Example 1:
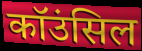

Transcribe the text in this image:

कॉउंसिल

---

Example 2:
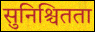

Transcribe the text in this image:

सुनिश्चितता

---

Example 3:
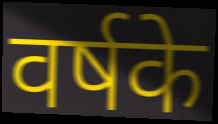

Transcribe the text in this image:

वर्षके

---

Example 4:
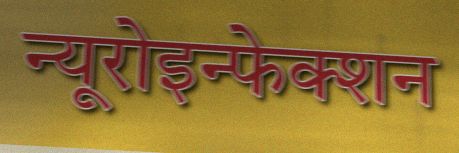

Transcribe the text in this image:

न्यूरोइन्फेक्शन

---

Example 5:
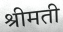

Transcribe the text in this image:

श्रीमती